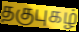
தகுபுகழ்